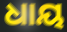
ଧାୟ